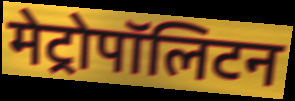
मेट्रोपॉलिटन